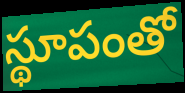
స్థూపంతో